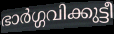
ഭാർഗ്ഗവിക്കുട്ടീ